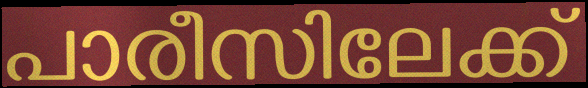
പാരീസിലേക്ക്